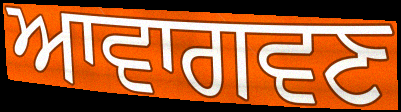
ਆਵਾਗਵਣ